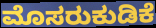
ಮೊಸರುಕುಡಿಕೆ